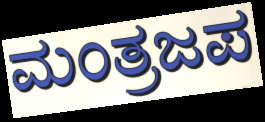
ಮಂತ್ರಜಪ